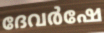
ദേവർഷേ